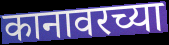
कानावरच्या